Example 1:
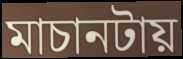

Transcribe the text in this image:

মাচানটায়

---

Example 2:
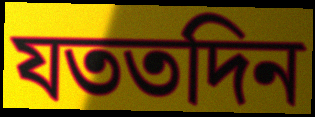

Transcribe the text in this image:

যততদিন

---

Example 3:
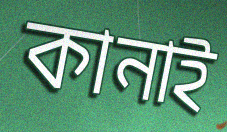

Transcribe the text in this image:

কানাই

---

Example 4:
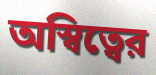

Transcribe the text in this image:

অস্বিত্বের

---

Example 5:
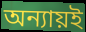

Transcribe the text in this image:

অন্যায়ই